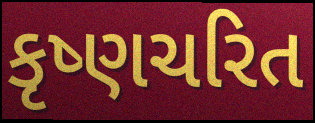
કૃષ્ણચરિત